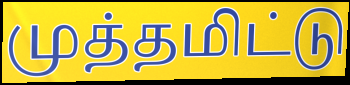
முத்தமிட்டு